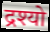
द्रश्यो